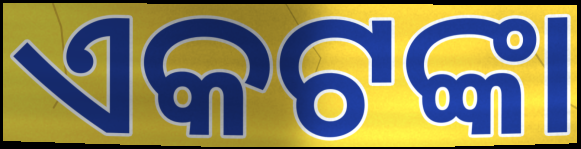
ଏକଟଙ୍କା